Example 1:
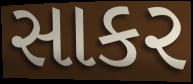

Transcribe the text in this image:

સાકર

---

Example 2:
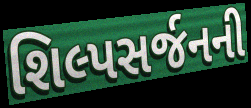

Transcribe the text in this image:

શિલ્પસર્જનની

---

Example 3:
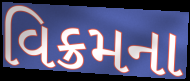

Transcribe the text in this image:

વિક્રમના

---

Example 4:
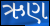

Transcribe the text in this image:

ઋણ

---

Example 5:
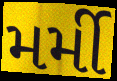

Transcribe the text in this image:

મર્મી